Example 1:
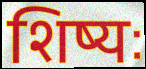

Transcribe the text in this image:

शिष्यः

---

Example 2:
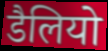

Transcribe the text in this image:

डैलियो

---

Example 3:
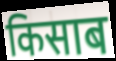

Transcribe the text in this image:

किसाब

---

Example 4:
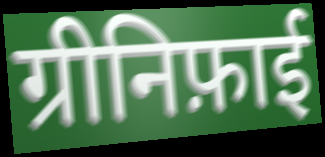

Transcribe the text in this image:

ग्रीनिफ़ाई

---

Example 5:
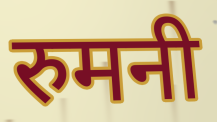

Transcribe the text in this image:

रुमनी